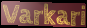
Varkari